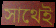
সাথেই